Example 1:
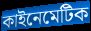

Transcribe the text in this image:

কাইনেমেটিক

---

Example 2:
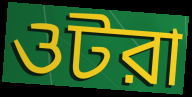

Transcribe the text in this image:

ওটরা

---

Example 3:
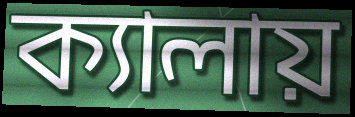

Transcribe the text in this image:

ক্যালায়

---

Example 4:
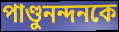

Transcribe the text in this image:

পাণ্ডুনন্দনকে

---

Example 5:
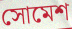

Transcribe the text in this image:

সোমেশ